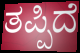
ತಪ್ಪಿದೆ